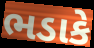
ભડાકે